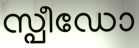
സ്പീഡോ